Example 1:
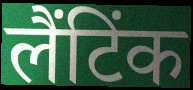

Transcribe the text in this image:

लैंटिंक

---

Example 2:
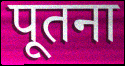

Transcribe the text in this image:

पूतना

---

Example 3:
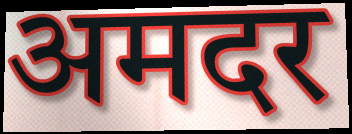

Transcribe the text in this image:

अमदर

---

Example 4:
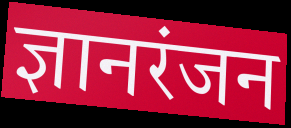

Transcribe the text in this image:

ज्ञानरंजन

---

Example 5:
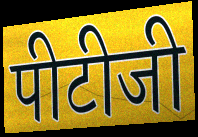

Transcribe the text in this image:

पीटीजी